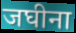
जघीना